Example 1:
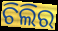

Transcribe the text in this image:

ଚିଲିର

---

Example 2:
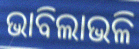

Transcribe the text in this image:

ଭାବିଲାଭଳି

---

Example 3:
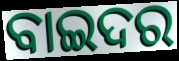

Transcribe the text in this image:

ବାଇଦର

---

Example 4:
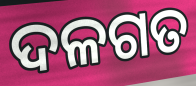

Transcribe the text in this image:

ଦଳଗତ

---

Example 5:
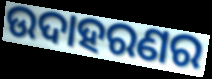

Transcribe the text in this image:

ଉଦାହରଣର